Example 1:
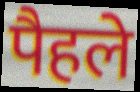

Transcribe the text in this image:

पैहले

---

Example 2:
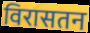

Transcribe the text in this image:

विरासतन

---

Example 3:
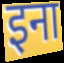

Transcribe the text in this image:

इना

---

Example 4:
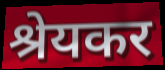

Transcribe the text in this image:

श्रेयकर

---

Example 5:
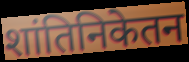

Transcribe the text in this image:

शांतिनिकेतन